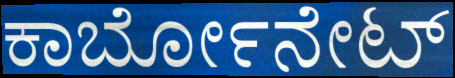
ಕಾರ್ಬೋನೇಟ್